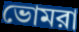
ভোমরা